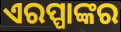
ଏରପ୍ପାଙ୍କର